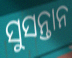
ସୁସନ୍ତାନ